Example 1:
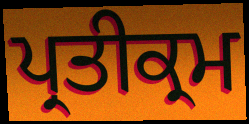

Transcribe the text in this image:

ਪ੍ਰਤੀਕ੍ਰਮ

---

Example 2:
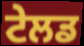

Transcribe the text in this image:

ਟੇਲਡ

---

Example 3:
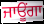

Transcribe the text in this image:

ਜਾਊਂਗਾ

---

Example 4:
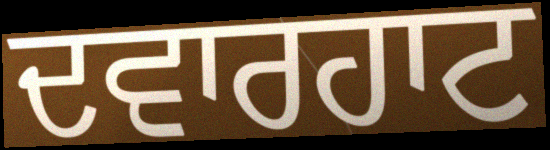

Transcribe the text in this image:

ਦਵਾਰਹਾਟ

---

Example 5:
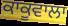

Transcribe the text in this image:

ਕਾਕੂਵਾਲਾ